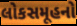
લોકસમૂહનો